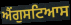
ਐਂਗੁਸਟਿਆਸ